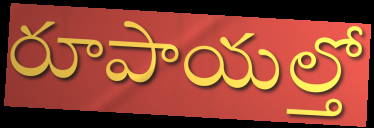
రూపాయల్తో